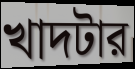
খাদটার